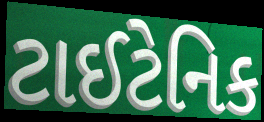
ટાઈટેનિક